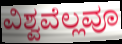
ವಿಶ್ವವೆಲ್ಲವೂ